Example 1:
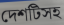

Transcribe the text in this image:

দেশটিসহ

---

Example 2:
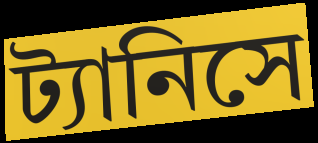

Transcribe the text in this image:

ট্যানিসে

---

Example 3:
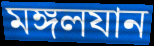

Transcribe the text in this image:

মঙ্গলযান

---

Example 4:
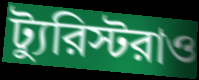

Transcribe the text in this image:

ট্যুরিস্টরাও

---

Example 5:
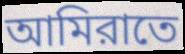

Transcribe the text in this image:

আমিরাতে